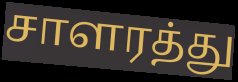
சாளரத்து